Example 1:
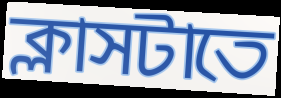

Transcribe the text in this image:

ক্লাসটাতে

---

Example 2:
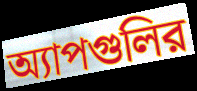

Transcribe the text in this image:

অ্যাপগুলির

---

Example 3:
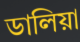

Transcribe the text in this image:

ডালিয়া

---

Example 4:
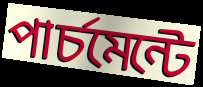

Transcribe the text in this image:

পার্চমেন্টে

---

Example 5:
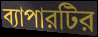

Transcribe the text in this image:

ব্যাপারটির